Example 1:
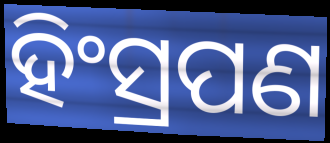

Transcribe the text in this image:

ହିଂସ୍ରପଣ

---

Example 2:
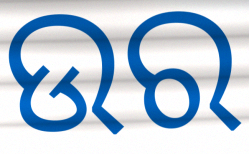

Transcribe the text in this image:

ଉର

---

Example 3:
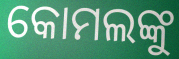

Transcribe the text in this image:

କୋମଲଙ୍କୁ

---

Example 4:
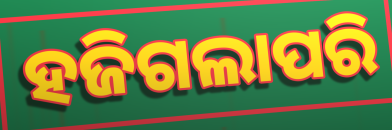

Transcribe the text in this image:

ହଜିଗଲାପରି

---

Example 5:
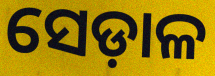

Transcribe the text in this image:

ସେଡ଼ାଳ